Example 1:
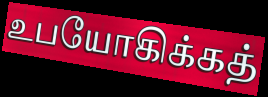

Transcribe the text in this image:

உபயோகிக்கத்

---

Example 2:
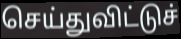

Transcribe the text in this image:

செய்துவிட்டுச்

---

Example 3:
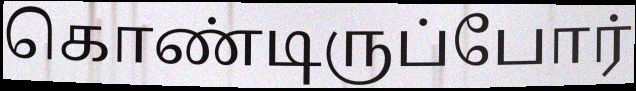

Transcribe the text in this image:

கொண்டிருப்போர்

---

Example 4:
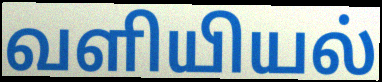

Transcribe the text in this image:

வளியியல்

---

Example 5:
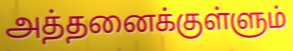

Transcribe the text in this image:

அத்தனைக்குள்ளும்